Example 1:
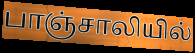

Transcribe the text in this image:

பாஞ்சாலியில்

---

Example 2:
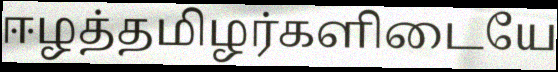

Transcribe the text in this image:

ஈழத்தமிழர்களிடையே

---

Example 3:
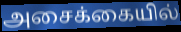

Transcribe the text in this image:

அசைக்கையில்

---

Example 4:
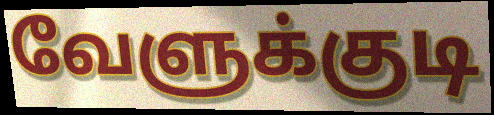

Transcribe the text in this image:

வேளுக்குடி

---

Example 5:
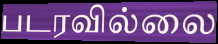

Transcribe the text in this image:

படரவில்லை